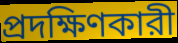
প্রদক্ষিণকারী